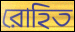
রোহিত